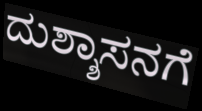
ದುಶ್ಶಾಸನಗೆ